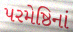
પરમેષ્ઠિનાં